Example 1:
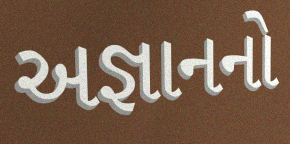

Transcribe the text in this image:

અજ્ઞાનનો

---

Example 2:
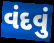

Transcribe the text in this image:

વંદવું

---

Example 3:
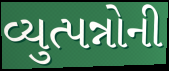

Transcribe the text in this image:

વ્યુત્પન્નોની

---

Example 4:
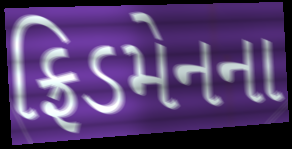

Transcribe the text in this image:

ફ્રિડમેનના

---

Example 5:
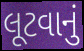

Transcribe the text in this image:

લૂટવાનું